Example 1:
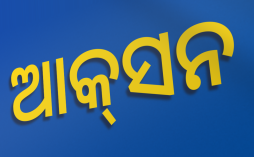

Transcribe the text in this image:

ଆକ୍‌ସନ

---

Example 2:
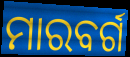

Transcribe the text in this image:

ମାରବର୍ଗ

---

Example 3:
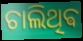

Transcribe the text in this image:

ଚାଲିଥିଵ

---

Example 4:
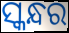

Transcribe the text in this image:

ସ୍କନ୍ଧର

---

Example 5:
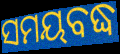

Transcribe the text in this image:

ସମୟବଦ୍ଧ